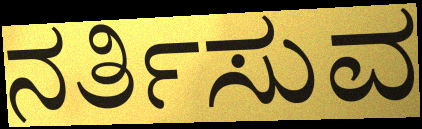
ನರ್ತಿಸುವ